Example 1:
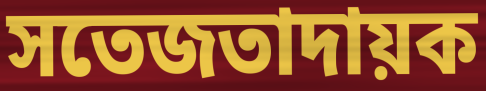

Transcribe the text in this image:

সতেজতাদায়ক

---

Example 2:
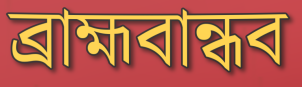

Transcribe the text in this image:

ব্রাহ্মবান্ধব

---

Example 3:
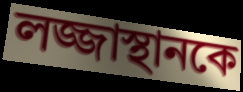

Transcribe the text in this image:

লজ্জাস্থানকে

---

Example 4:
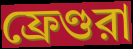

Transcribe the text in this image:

ফ্রেণ্ডরা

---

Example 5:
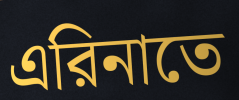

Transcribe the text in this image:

এরিনাতে